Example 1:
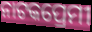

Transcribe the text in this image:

ନାଟକପ୍ରେମୀ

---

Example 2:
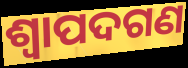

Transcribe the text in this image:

ଶ୍ୱାପଦଗଣ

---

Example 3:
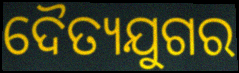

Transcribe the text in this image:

ଦୈତ୍ୟଯୁଗର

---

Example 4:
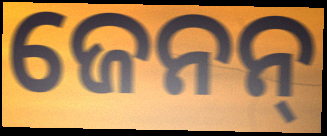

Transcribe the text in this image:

ଜେନନ୍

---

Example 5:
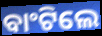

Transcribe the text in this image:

ବାଂଟିଲେ